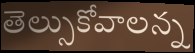
తెల్సుకోవాలన్న